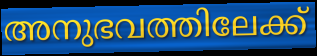
അനുഭവത്തിലേക്ക്